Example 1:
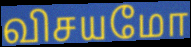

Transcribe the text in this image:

விசயமோ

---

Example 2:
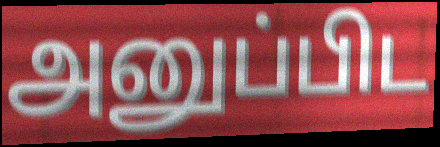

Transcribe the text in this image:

அனுப்பிட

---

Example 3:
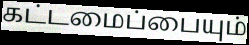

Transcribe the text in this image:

கட்டமைப்பையும்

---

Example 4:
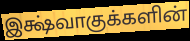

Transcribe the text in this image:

இக்ஷ்வாகுக்களின்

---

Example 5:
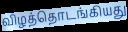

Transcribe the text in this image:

விழத்தொடங்கியது